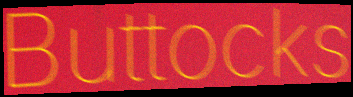
Buttocks